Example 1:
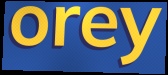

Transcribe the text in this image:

orey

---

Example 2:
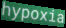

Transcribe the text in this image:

hypoxia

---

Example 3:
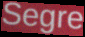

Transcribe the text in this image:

Segre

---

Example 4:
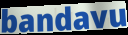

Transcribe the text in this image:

bandavu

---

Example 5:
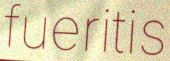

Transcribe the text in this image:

fueritis